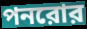
পনরোর